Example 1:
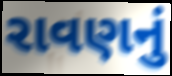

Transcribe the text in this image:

રાવણનું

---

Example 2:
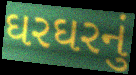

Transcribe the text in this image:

ઘરઘરનું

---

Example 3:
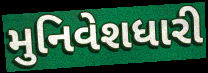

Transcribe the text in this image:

મુનિવેશધારી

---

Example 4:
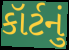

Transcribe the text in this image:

કૉર્ટનું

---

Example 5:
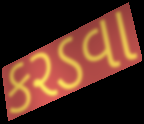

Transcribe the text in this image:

કરડવા